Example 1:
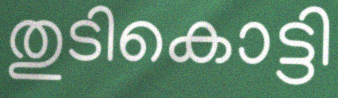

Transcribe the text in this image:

തുടികൊട്ടി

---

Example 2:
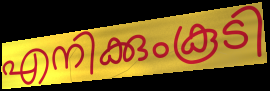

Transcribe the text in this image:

എനിക്കുംകൂടി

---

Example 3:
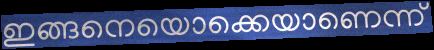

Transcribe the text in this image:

ഇങ്ങനെയൊക്കെയാണെന്ന്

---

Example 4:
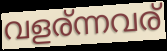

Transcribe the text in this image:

വളര്ന്നവര്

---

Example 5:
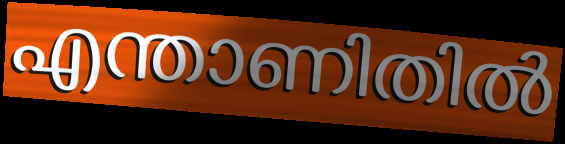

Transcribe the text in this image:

എന്താണിതിൽ